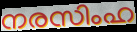
നരസിംഹ